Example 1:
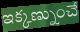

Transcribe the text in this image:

ఇక్కణ్నుంచే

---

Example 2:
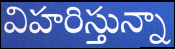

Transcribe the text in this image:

విహరిస్తున్నా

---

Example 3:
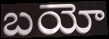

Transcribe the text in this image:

బయో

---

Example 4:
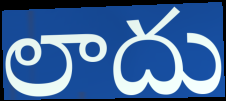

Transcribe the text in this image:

లాదు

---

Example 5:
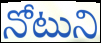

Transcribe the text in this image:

నోటుని